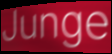
Junge